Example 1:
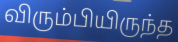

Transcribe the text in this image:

விரும்பியிருந்த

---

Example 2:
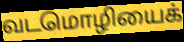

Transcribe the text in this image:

வடமொழியைக்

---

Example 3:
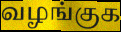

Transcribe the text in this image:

வழங்குக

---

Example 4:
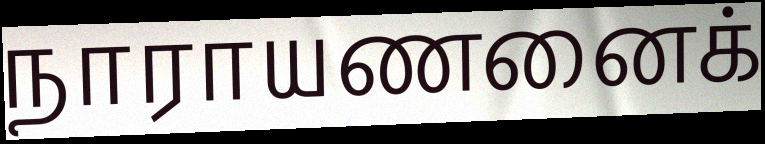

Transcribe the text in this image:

நாராயணனைக்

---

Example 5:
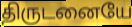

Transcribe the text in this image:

திருடனையே